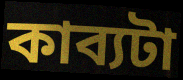
কাব্যটা